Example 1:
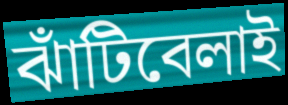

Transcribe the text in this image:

ঝাঁটিবেলাই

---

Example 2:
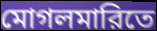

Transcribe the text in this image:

মোগলমারিতে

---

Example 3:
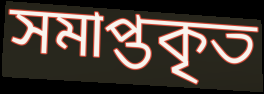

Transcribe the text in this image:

সমাপ্তকৃত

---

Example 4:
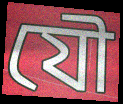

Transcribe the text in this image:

যৌ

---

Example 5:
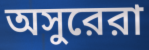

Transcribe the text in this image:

অসুরেরা